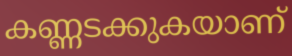
കണ്ണടക്കുകയാണ്